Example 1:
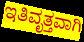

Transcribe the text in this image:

ಇತಿವೃತ್ತವಾಗಿ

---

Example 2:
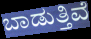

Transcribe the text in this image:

ಬಾಡುತ್ತಿವೆ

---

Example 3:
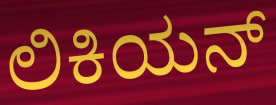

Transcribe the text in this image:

ಲಿಕಿಯನ್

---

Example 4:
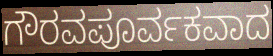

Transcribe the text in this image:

ಗೌರವಪೂರ್ವಕವಾದ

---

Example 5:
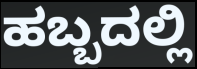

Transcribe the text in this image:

ಹಬ್ಬದಲ್ಲಿ